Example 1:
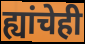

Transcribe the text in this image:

ह्यांचेही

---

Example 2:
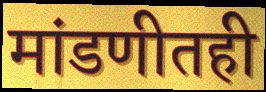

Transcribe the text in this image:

मांडणीतही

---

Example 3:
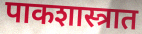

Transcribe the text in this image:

पाकशास्त्रात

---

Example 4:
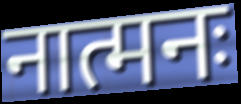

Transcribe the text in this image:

नात्मनः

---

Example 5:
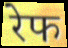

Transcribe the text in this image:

रेफ